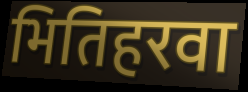
भितिहरवा